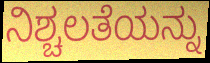
ನಿಶ್ಚಲತೆಯನ್ನು